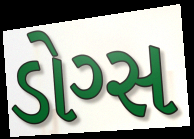
ડોગ્સ